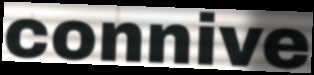
connive